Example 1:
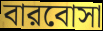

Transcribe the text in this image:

বারবোসা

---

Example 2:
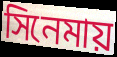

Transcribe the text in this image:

সিনেমায়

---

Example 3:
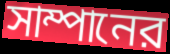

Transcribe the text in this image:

সাম্পানের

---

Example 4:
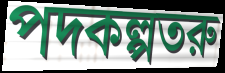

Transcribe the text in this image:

পদকল্পতরু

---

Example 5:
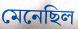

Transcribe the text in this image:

মেনেছিল